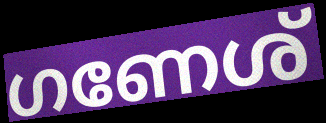
ഗണേശ്